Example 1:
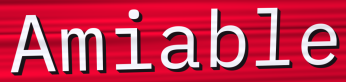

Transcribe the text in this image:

Amiable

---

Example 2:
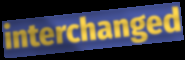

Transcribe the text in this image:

interchanged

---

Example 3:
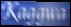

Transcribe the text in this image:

Kaggwa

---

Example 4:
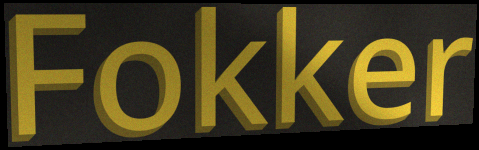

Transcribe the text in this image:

Fokker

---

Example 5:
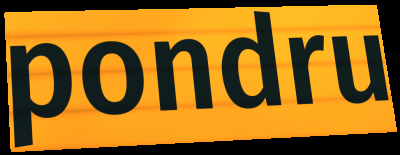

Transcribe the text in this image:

pondru